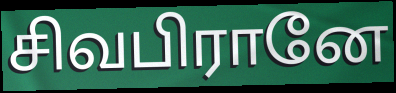
சிவபிரானே